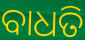
ବାଧତି